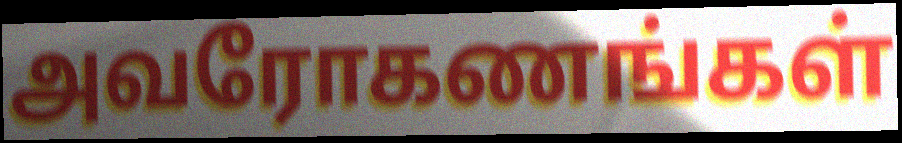
அவரோகணங்கள்